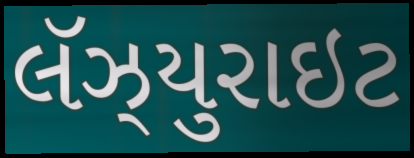
લૅઝ્યુરાઇટ